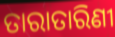
ତାରାତାରିଣୀ